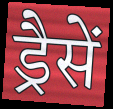
ड्रैसें